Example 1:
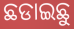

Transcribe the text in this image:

ଛଡାଇଛୁ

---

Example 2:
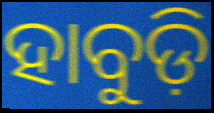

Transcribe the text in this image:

ହାବୁଡ଼ି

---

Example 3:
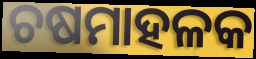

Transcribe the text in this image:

ଚଷମାହଳକ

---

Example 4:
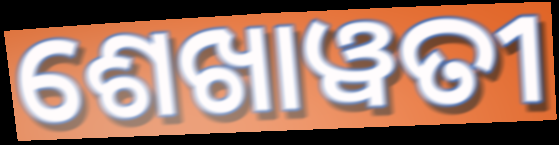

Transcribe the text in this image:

ଶେଖାୱତୀ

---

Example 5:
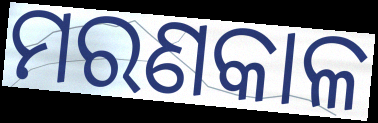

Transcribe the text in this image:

ମରଣକାଳ